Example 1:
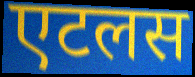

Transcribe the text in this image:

एटलस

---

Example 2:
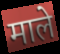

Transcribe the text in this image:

माले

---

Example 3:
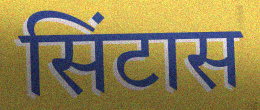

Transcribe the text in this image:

सिंटास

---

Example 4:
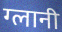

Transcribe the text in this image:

ग्लानी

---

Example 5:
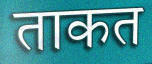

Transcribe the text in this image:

ताकत